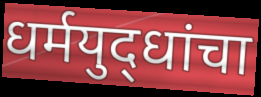
धर्मयुद्धांचा